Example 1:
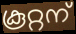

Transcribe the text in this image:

കൂറ്റന്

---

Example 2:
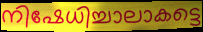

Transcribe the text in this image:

നിഷേധിച്ചാലാകട്ടെ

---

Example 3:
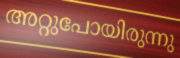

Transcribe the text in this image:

അറ്റുപോയിരുന്നു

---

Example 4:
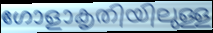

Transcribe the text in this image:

ഗോളാകൃതിയിലുള്ള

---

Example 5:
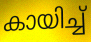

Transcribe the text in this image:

കായിച്ച്